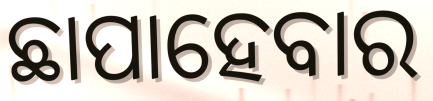
ଛାପାହେବାର